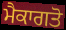
ਮੈਕਾਗਤੋ